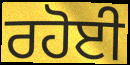
ਰਹੋਈ